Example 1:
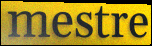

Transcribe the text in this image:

mestre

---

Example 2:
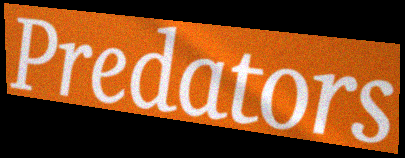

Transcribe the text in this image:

Predators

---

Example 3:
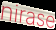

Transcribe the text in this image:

nirase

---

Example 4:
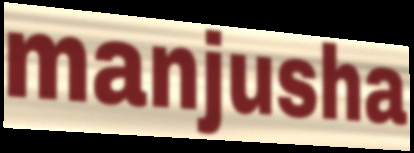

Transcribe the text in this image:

manjusha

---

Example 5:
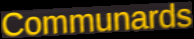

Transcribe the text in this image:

Communards